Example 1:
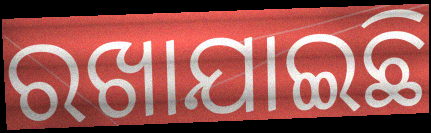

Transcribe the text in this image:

ରଖାଯାଇଛି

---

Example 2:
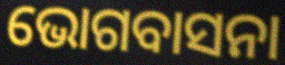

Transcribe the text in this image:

ଭୋଗବାସନା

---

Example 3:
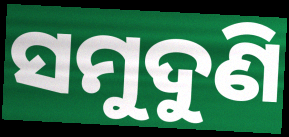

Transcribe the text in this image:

ସମୁଦୁଣି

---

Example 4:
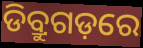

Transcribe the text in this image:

ଡିବ୍ରୁଗଡ଼ରେ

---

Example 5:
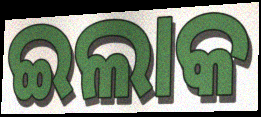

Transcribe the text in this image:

ଇଲାକ